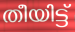
തീയിട്ട്